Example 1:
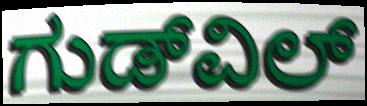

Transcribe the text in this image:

ಗುಡ್‌ವಿಲ್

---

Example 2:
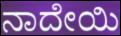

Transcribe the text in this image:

ನಾದೇಯಿ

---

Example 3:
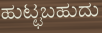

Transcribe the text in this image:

ಹುಟ್ಟಬಹುದು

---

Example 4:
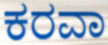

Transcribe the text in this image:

ಕರವಾ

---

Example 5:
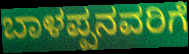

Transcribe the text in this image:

ಬಾಳಪ್ಪನವರಿಗೆ